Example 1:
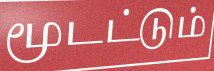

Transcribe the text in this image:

மூடட்டும்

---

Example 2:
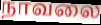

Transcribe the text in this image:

நாவலை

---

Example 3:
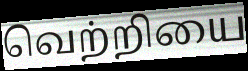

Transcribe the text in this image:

வெற்றியை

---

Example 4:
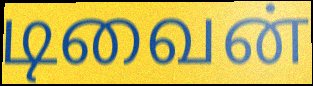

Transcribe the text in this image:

டிவைன்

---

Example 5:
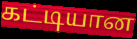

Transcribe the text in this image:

கட்டியான